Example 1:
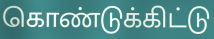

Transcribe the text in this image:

கொண்டுக்கிட்டு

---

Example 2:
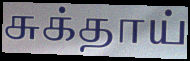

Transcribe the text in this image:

சுக்தாய்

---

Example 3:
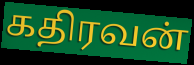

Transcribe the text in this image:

கதிரவன்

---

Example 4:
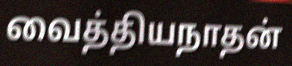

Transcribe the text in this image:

வைத்தியநாதன்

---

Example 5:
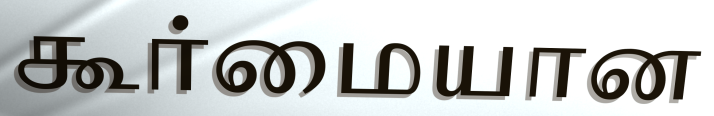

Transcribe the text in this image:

கூர்மையான